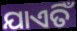
ଯାଏତିଁ